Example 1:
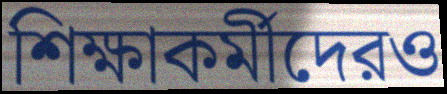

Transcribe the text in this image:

শিক্ষাকর্মীদেরও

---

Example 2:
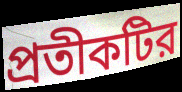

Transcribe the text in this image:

প্রতীকটির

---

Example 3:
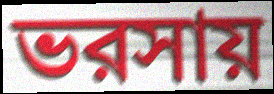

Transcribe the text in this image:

ভরসায়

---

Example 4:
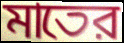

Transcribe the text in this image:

মাতের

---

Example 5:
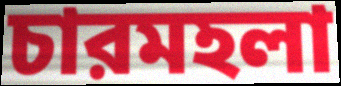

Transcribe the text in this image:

চারমহলা